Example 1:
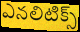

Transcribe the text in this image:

ఎనలిటిక్స్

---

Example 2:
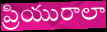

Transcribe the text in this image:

ప్రియురాలా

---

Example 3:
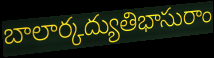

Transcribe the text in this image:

బాలార్కద్యుతిభాసురాం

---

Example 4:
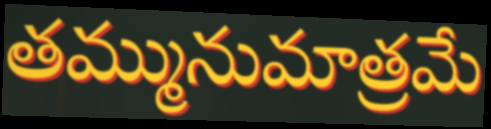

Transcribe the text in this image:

తమ్మునుమాత్రమే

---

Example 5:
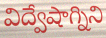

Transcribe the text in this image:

విద్వేషాగ్నిని